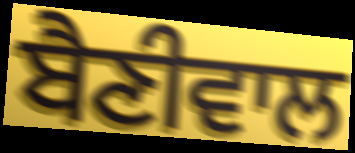
ਬੈਣੀਵਾਲ